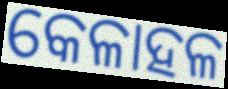
କେଳାହଳ